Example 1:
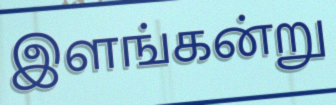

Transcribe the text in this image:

இளங்கன்று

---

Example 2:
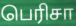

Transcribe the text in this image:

பெரிசா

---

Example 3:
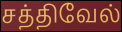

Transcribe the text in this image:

சத்திவேல்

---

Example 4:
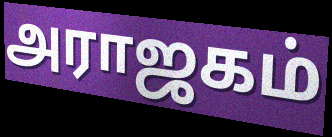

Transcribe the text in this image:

அராஜகம்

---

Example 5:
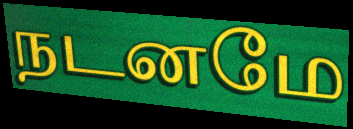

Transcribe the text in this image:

நடனமே